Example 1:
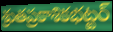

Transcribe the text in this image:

శ్రుతప్రకాశికభట్టర్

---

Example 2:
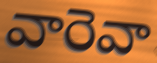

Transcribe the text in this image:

వారెవా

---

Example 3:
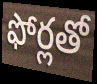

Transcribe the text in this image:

ఫోర్లతో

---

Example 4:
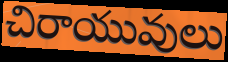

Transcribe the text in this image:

చిరాయువులు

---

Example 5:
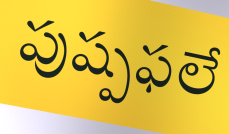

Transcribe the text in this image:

పుష్పఫలే